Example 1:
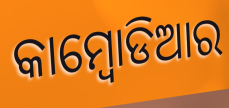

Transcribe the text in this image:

କାମ୍ବୋଡିଆର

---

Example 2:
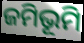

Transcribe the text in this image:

ଜମିଭୂମି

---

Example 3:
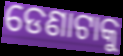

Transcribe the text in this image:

ଡେଣାଟାକୁ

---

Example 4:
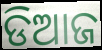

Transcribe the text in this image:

ଡିଆଜ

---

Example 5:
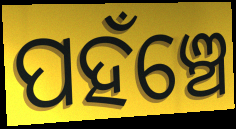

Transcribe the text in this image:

ପହଁଞ୍ଚେ